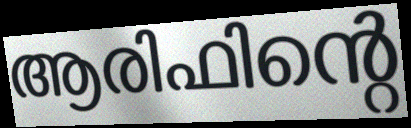
ആരിഫിന്റെ